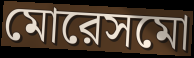
মোরেসমো